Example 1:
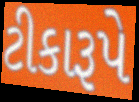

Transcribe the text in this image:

ટીકારૂપે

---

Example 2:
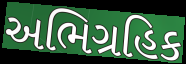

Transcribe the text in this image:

અભિગ્રહિક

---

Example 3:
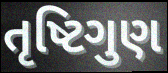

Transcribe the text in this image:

તૃષ્ટિગુણ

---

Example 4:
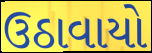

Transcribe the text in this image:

ઉઠાવાયો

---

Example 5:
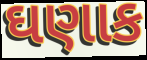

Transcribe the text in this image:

ઘણાક